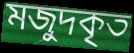
মজুদকৃত